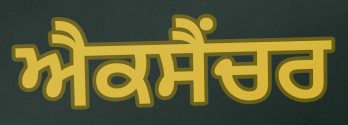
ਐਕਸੈਂਚਰ